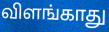
விளங்காது